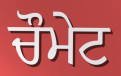
ਚੌਮੇਟ